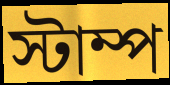
স্টাম্প